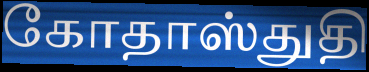
கோதாஸ்துதி